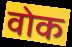
वोक